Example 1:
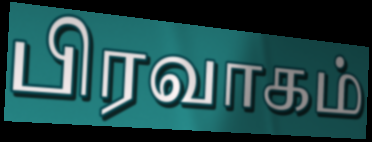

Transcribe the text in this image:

பிரவாகம்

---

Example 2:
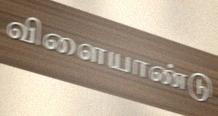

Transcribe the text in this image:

விளையாண்டு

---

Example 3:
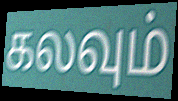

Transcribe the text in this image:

கலவும்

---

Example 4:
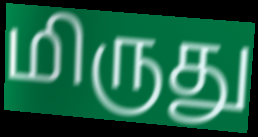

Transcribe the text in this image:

மிருது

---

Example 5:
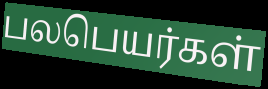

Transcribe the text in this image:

பலபெயர்கள்